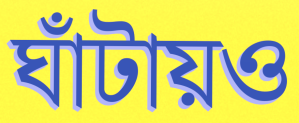
ঘাঁটায়ও